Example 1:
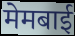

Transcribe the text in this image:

मेमबाई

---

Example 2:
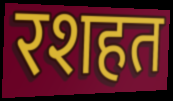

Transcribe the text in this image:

रशहत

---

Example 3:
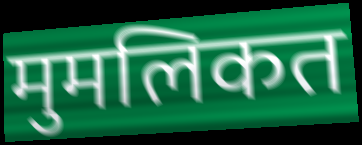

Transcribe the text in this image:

मुमलिकत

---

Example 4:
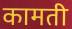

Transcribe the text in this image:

कामती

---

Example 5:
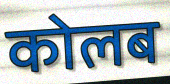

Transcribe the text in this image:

कोलब